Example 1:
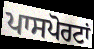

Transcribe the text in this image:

ਪਾਸਪੋਰਟਾਂ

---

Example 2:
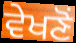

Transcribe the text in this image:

ਵੇਖਣੋਂ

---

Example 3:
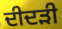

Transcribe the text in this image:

ਦੀਦੜੀ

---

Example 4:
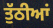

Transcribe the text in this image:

ਤੁੱਠੀਆਂ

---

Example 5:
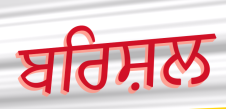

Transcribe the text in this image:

ਬਰਿਸ਼ਲ